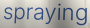
spraying